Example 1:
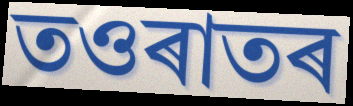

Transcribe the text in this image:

তওৰাতৰ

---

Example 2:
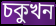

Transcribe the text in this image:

চকুখন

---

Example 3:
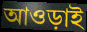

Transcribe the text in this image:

আওড়াই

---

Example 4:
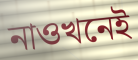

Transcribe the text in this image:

নাওখনেই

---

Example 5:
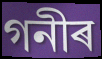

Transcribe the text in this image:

গনীৰ